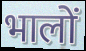
भालों